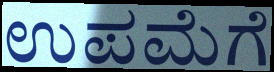
ಉಪಮೆಗೆ